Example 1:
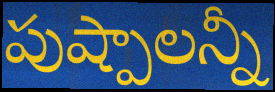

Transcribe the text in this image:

పుష్పాలన్నీ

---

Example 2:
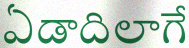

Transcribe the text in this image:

ఏడాదిలాగే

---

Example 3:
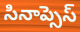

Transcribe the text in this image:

సినాప్సెస్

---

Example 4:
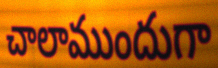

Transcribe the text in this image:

చాలాముందుగా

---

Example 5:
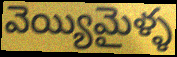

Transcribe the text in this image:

వెయ్యిమైళ్ళ